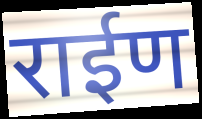
राईण